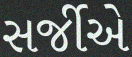
સર્જીએ